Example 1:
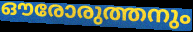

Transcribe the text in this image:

ഔരോരുത്തനും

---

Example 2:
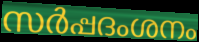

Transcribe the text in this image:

സർപ്പദംശനം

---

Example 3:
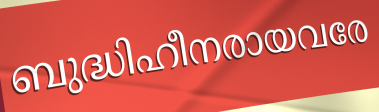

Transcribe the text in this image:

ബുദ്ധിഹീനരായവരേ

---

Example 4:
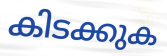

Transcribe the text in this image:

കിടക്കുക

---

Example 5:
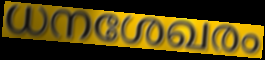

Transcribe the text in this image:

ധനശേഖരം